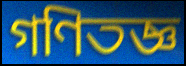
গণিতজ্ঞ